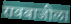
रावबाजीला